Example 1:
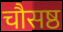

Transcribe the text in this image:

चौसष्ठ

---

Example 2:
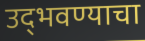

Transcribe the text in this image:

उद्भवण्याचा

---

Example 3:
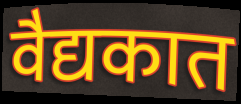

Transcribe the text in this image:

वैद्यकात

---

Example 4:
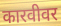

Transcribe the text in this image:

कारवीवर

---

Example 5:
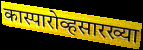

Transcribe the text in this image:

कास्पारोव्हसारख्या